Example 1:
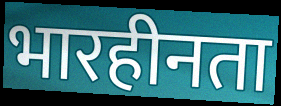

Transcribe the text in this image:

भारहीनता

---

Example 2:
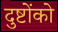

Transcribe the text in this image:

दुष्टोंको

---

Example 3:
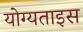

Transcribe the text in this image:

योग्यताइस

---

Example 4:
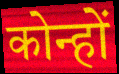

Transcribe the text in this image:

कोन्हों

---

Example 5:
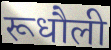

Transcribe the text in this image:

रूधौली